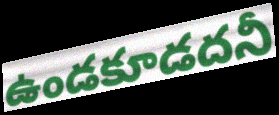
ఉండకూడదనీ